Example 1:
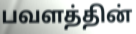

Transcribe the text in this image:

பவளத்தின்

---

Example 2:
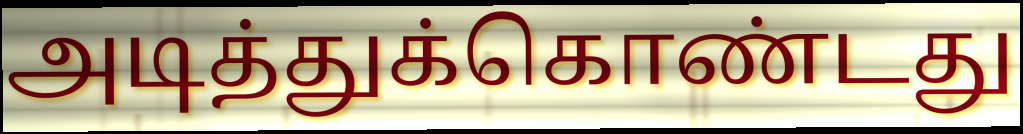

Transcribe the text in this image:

அடித்துக்கொண்டது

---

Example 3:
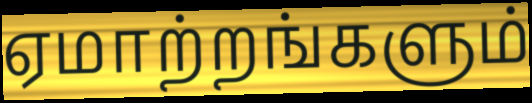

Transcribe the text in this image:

ஏமாற்றங்களும்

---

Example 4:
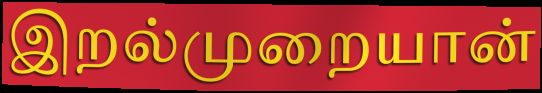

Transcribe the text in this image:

இறல்முறையான்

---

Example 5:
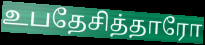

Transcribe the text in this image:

உபதேசித்தாரோ